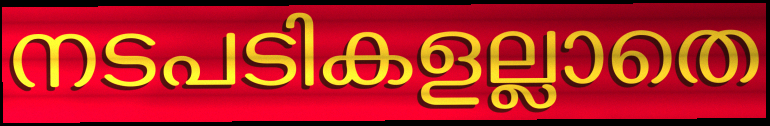
നടപടികളല്ലാതെ